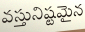
వస్తునిష్టమైన